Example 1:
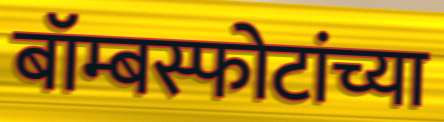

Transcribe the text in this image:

बॉम्बस्फोटांच्या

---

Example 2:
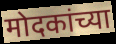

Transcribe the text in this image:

मोदकांच्या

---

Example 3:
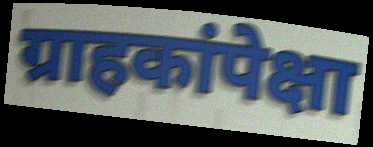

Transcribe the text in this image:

ग्राहकांपेक्षा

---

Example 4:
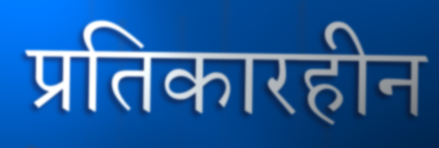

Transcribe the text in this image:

प्रतिकारहीन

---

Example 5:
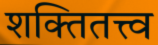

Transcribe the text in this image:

शक्तितत्त्व